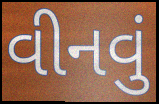
વીનવું